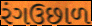
રંગઉછાળ